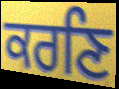
ਕਰਣਿ